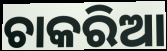
ଚାକରିଆ